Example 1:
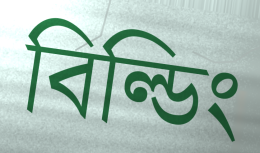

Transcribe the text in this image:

বিল্ডিং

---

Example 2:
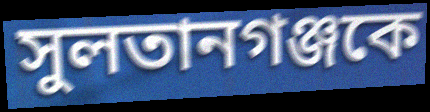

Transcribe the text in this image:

সুলতানগঞ্জকে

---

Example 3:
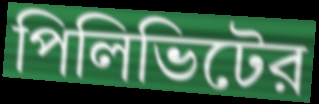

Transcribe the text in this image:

পিলিভিটের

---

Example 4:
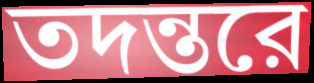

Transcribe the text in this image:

তদন্তরে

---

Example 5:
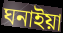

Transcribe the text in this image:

ঘনাইয়া